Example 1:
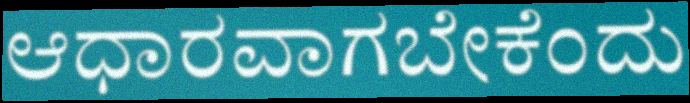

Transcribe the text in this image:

ಆಧಾರವಾಗಬೇಕೆಂದು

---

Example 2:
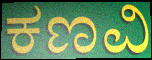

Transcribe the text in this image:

ಕಣವಿ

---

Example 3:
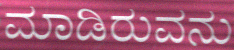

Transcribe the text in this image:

ಮಾಡಿರುವನು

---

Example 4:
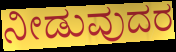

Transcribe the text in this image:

ನೀಡುವುದರ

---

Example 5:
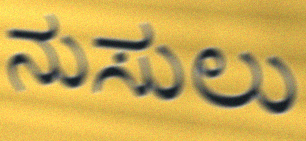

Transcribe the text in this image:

ನುಸುಲು